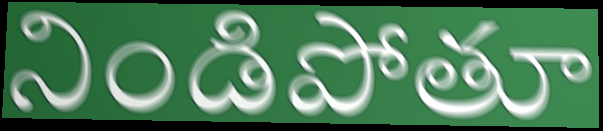
నిండిపోతూ